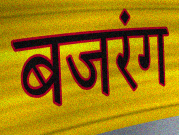
बजरंग